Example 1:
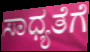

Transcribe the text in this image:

ಸಾಧ್ಯತೆಗೆ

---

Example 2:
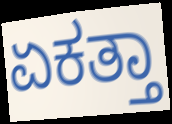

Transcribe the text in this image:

ಏಕತ್ತಾ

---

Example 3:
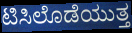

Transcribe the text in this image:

ಟಿಸಿಲೊಡೆಯುತ್ತ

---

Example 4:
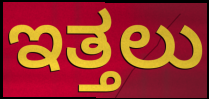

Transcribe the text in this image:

ಇತ್ತಲು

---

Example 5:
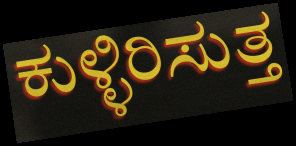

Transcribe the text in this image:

ಕುಳ್ಳಿರಿಸುತ್ತ